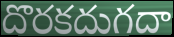
దొరకదుగదా